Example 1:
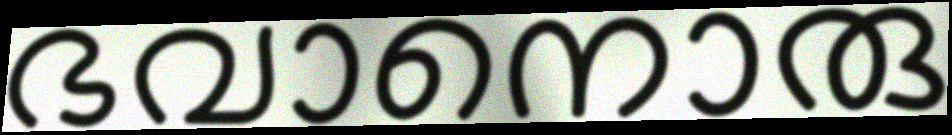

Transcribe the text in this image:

ഭവാനൊരു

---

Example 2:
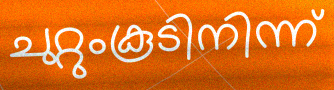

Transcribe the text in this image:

ചുറ്റുംകൂടിനിന്ന്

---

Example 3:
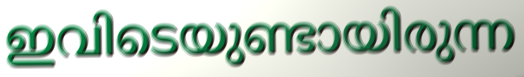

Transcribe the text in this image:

ഇവിടെയുണ്ടായിരുന്ന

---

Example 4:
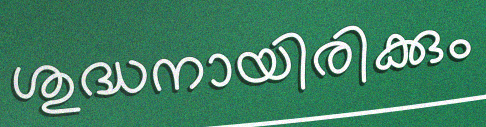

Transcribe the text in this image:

ശുദ്ധനായിരിക്കും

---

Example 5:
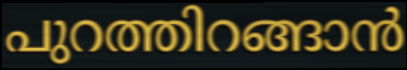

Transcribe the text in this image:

പുറത്തിറങ്ങാൻ